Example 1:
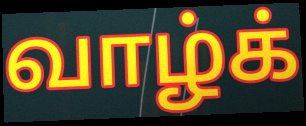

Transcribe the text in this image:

வாழ்க்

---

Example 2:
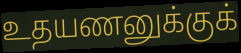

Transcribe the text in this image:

உதயணனுக்குக்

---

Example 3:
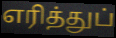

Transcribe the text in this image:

எரித்துப்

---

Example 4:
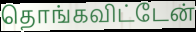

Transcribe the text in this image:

தொங்கவிட்டேன்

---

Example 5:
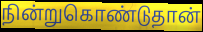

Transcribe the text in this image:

நின்றுகொண்டுதான்